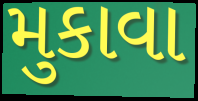
મુકાવા